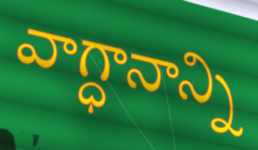
వాగ్ధానాన్ని